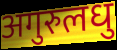
अगुरुलधु